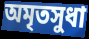
অমৃতসুধা